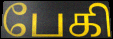
பேகி